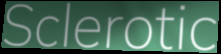
Sclerotic